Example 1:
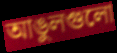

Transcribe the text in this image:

আঙুলগুলো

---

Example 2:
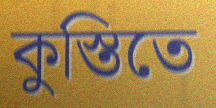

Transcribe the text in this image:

কুস্তিতে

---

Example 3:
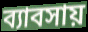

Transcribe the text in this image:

ব্যাবসায়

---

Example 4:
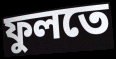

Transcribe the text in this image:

ফুলতে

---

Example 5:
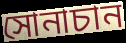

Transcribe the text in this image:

সোনাচান